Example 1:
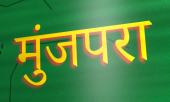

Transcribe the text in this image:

मुंजपरा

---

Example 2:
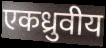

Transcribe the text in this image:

एकध्रुवीय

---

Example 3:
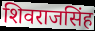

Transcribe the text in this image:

शिवराजसिंह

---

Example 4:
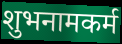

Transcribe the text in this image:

शुभनामकर्म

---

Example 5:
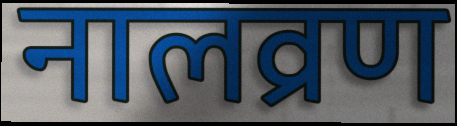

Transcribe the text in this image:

नालव्रण